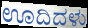
ಊದಿದಳು